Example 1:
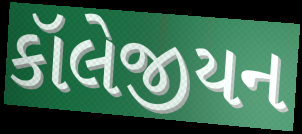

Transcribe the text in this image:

કૉલેજીયન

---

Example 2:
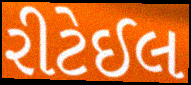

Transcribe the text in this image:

રીટેઈલ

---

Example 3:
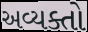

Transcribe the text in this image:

અવ્યક્તો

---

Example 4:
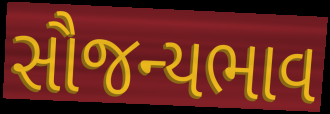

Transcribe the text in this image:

સૌજન્યભાવ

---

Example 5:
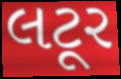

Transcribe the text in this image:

લટૂર